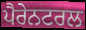
ਪੈਰੇਨਟਰਲ